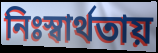
নিঃস্বার্থতায়